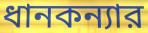
ধানকন্যার